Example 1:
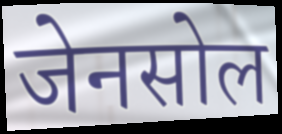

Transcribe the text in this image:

जेनसोल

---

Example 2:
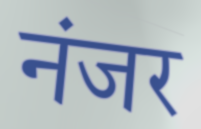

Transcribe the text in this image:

नंजर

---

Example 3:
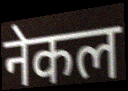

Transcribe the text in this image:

नेकल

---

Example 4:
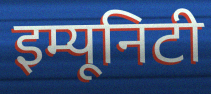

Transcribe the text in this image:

इम्‍यूनिटी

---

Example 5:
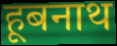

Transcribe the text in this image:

हूबनाथ